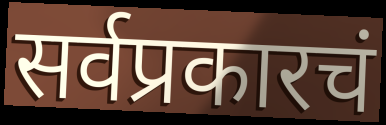
सर्वप्रकारचं